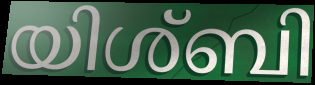
യിശ്ബി